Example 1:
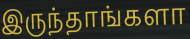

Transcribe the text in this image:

இருந்தாங்களா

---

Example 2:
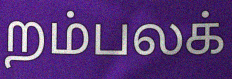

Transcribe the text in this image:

றம்பலக்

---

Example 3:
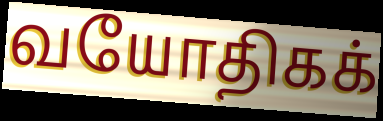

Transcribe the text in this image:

வயோதிகக்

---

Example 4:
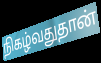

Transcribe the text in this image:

நிகழ்வதுதான்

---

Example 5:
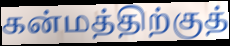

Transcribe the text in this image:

கன்மத்திற்குத்